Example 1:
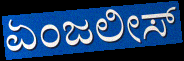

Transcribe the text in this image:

ಏಂಜಲೀಸ್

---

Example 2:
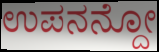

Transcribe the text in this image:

ಉಪನನ್ದೋ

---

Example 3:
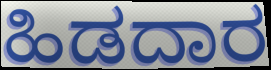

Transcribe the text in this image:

ಹಿಡದಾರ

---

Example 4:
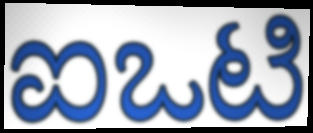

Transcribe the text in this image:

ಐಒಟಿ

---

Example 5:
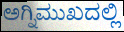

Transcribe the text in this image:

ಅಗ್ನಿಮುಖದಲ್ಲಿ